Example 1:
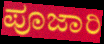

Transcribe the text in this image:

ಪೂಜಾರಿ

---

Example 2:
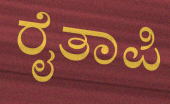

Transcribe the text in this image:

ರೈತಾಪಿ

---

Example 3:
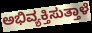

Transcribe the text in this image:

ಅಭಿವ್ಯಕ್ತಿಸುತ್ತಾಳೆ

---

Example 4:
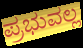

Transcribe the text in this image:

ಪ್ರಭುವಲ್ಲ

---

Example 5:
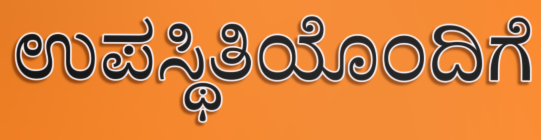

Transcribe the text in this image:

ಉಪಸ್ಥಿತಿಯೊಂದಿಗೆ